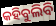
କହିବୁଲିବି